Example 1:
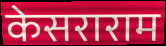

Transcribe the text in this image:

केसराराम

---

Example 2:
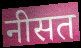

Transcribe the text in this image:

नीसत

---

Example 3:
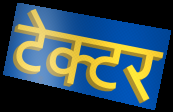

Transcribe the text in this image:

टेक्टर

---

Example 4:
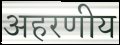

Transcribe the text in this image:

अहरणीय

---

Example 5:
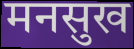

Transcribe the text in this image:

मनसुख